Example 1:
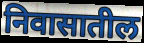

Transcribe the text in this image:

निवासातील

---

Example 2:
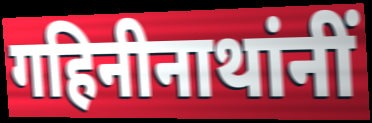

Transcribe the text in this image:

गहिनीनाथांनीं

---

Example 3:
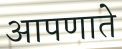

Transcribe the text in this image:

आपणाते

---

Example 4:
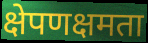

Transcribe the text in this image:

क्षेपणक्षमता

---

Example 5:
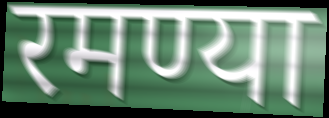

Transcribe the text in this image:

रमण्या